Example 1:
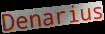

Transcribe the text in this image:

Denarius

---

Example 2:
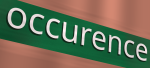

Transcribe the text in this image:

occurence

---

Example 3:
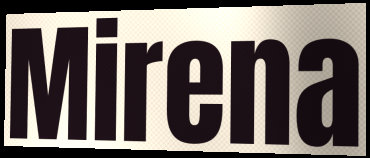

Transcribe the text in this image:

Mirena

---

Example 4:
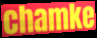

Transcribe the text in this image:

chamke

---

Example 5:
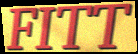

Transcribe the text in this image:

FITT